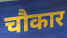
चौकार